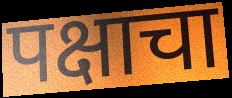
पक्षाचा